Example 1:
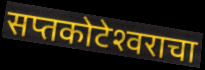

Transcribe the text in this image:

सप्तकोटेश्वराचा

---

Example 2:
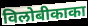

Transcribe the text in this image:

विलोबीकाका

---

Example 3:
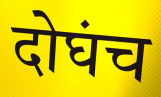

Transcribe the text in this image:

दोघंच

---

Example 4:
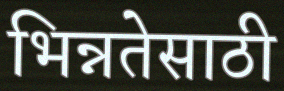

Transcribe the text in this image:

भिन्नतेसाठी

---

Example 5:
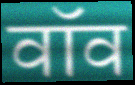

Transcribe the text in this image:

वॉव